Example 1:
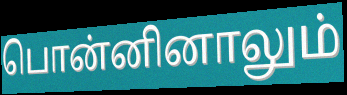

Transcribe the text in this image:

பொன்னினாலும்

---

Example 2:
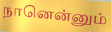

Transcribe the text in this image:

நானென்னும்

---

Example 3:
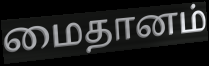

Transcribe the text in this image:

மைதானம்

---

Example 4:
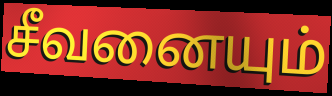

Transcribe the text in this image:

சீவனையும்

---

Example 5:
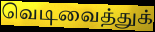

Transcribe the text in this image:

வெடிவைத்துக்